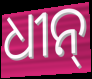
ଧୀନ୍